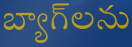
బ్యాగ్‌లను